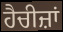
ਹੈਚੀਜ਼ਾਂ